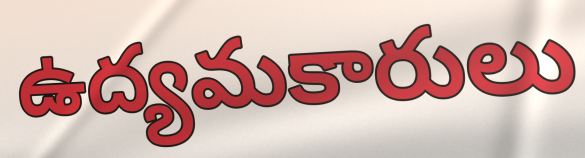
ఉద్యమకారులు